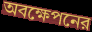
অবক্ষেপনের